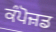
ਕੰਪੋਜ਼ਡ